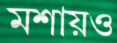
মশায়ও